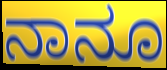
ನಾನೂ